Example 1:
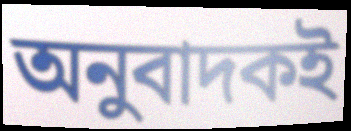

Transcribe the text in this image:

অনুবাদকই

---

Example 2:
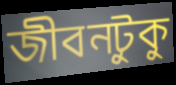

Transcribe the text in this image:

জীবনটুকু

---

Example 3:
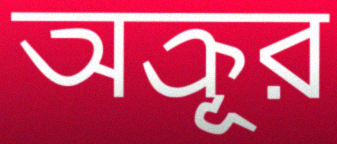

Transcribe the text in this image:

অক্রূর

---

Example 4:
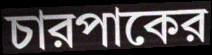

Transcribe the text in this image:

চারপাকের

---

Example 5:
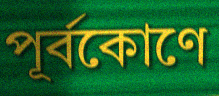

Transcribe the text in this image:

পূর্বকোণে